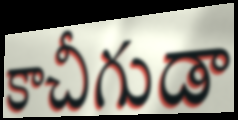
కాచీగుడా